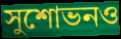
সুশোভনও